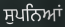
ਸੁਪਨਿਆਂ